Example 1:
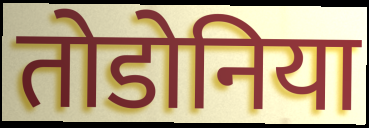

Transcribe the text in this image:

तोडोनिया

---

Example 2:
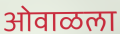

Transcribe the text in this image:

ओवाळला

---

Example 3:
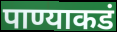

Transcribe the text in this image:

पाण्याकडं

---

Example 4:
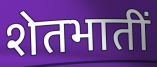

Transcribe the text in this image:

शेतभातीं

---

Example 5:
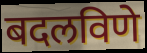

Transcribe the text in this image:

बदलविणे